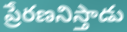
ప్రేరణనిస్తాడు